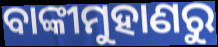
ବାଙ୍କୀମୁହାଣରୁ